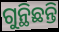
ଗୁନ୍ଥିଛନ୍ତି